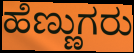
ಹೆಣ್ಣುಗರು